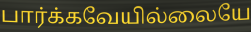
பார்க்கவேயில்லையே